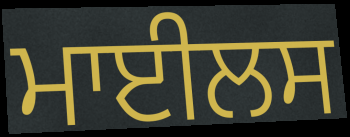
ਮਾਈਲਸ